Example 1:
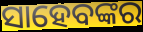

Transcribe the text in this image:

ସାହେବଙ୍କର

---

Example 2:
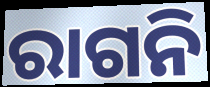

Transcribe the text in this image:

ରାଗନି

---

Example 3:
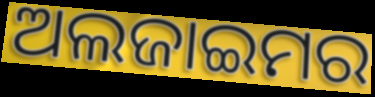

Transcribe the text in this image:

ଅଲଜାଇମର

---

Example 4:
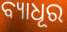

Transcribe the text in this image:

ବ୍ୟାଧୂର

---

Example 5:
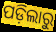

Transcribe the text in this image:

ପଡ଼ିଲାରୁ